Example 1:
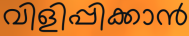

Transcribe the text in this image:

വിളിപ്പിക്കാൻ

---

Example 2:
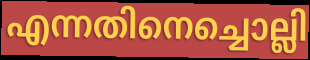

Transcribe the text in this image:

എന്നതിനെച്ചൊല്ലി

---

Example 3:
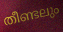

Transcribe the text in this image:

തീണ്ടലും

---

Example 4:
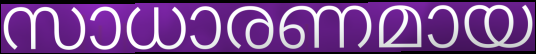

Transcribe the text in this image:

സാധാരണമായ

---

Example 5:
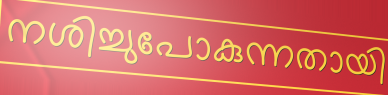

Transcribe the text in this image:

നശിച്ചുപോകുന്നതായി